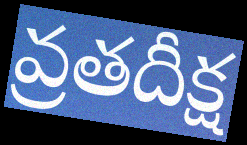
వ్రతదీక్ష